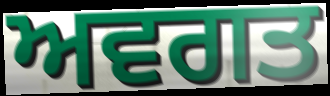
ਅਵਗਤ